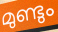
മുണ്ടും